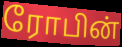
ரோபின்